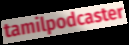
tamilpodcaster